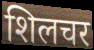
शिलचर